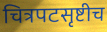
चित्रपटसृष्टीच